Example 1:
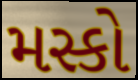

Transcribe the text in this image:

મસ્કો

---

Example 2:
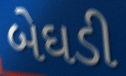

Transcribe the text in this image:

બેઘડી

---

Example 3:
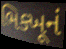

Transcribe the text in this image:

ભિક્ખૂનં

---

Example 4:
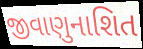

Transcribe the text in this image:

જીવાણુનાશિત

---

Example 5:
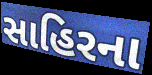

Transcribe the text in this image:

સાહિરના